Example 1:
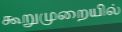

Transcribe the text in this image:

கூறுமுறையில்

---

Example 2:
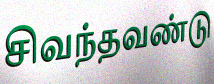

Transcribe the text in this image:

சிவந்தவண்டு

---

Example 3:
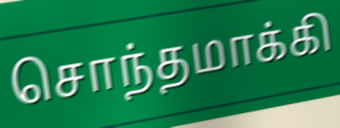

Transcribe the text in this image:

சொந்தமாக்கி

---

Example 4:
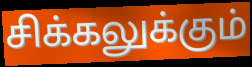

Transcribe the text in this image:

சிக்கலுக்கும்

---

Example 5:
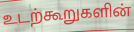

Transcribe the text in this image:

உடற்கூறுகளின்